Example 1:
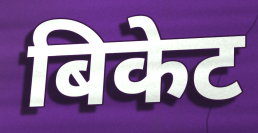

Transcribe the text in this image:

बिकेट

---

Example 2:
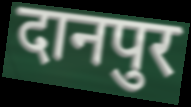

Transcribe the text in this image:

दानपुर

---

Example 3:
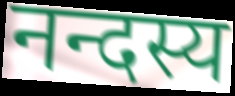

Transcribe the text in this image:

नन्दस्य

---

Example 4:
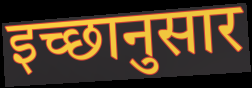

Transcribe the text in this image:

इच्‍छानुसार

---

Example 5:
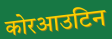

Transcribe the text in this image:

कोरआउटिन